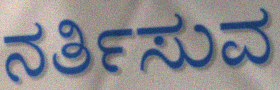
ನರ್ತಿಸುವ